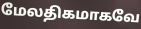
மேலதிகமாகவே